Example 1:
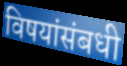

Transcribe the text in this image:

विषयांसंबधी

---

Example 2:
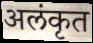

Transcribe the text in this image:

अलंकृत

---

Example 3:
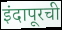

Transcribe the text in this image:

इंदापूरची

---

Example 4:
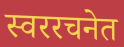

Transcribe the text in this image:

स्वररचनेत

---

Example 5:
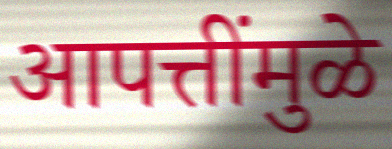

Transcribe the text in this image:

आपत्तींमुळे